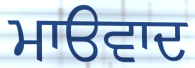
ਮਾੳਵਾਦ